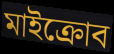
মাইক্রোব